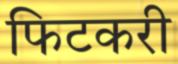
फिटकरी